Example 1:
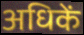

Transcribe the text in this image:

अधिकें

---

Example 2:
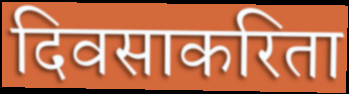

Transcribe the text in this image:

दिवसाकरिता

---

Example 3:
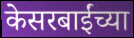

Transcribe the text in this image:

केसरबाईंच्या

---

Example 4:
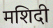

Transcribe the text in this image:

मशिदी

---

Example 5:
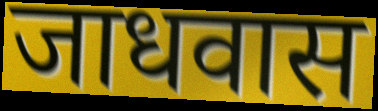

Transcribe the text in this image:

जाधवास